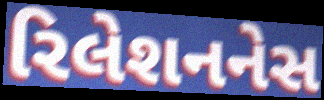
રિલેશનનેસ